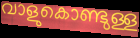
വാളുകൊണ്ടുള്ള